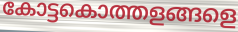
കോട്ടകൊത്തളങ്ങളെ